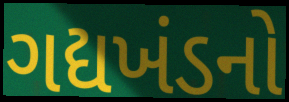
ગદ્યખંડનો